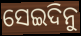
ସେଇଦିନୁ